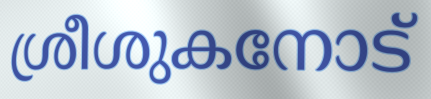
ശ്രീശുകനോട്